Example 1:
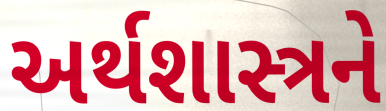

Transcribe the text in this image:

અર્થશાસ્ત્રને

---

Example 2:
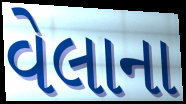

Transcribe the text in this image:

વેલાના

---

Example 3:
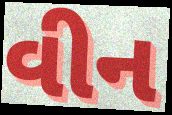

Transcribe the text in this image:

વીન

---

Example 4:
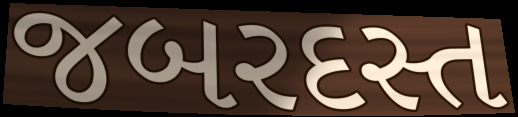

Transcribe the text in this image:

જબરદસ્ત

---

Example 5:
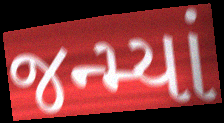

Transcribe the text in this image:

જન્મ્યાં